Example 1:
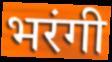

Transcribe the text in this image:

भरंगी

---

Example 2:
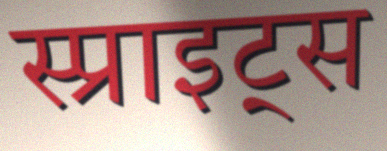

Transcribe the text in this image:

स्प्राइट्स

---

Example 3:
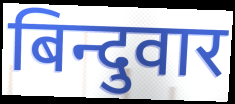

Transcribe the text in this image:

बिन्दुवार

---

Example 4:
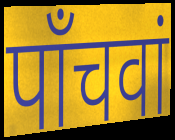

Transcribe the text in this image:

पाँचवां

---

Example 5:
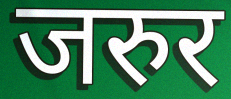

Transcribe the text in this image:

जरुर